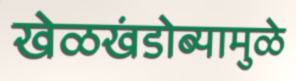
खेळखंडोब्यामुळे